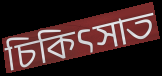
চিকিৎসাত